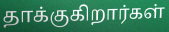
தாக்குகிறார்கள்